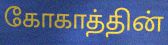
கோகாத்தின்